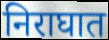
निराघात